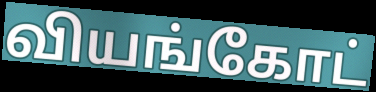
வியங்கோட்